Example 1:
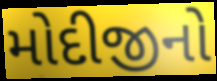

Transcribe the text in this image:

મોદીજીનો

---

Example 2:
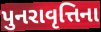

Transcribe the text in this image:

પુનરાવૃત્તિના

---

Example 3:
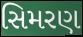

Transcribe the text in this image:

સિમરણ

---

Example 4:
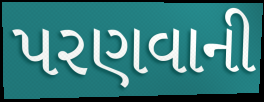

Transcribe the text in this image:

પરણવાની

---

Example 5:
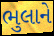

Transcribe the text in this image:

ભુલાને